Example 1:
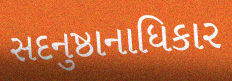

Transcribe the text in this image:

સદનુષ્ઠાનાધિકાર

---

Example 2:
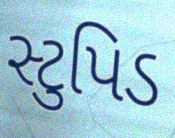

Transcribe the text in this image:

સ્ટુપિડ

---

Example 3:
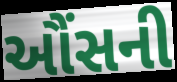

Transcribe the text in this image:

ઔંસની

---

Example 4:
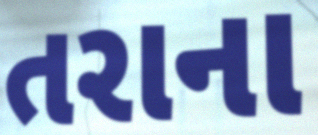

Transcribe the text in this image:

તરાના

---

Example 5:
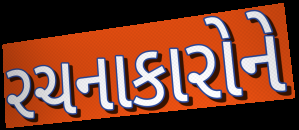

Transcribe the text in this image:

રચનાકારોને